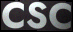
CSC